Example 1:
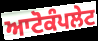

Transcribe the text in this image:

ਆਟੋਕੰਪਲੇਟ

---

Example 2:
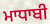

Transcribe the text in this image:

ਮਾਧਾਬੀ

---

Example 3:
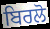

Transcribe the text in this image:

ਬਿਰਲੋ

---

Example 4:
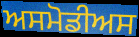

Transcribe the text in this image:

ਅਸਮੋਡੀਅਸ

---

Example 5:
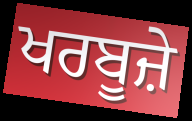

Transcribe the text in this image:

ਖਰਬੂਜ਼ੇ